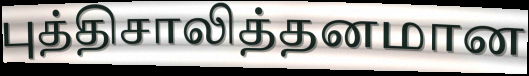
புத்திசாலித்தனமான